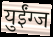
युईंग्ज